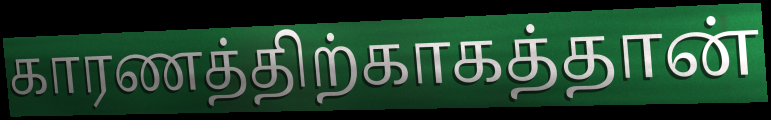
காரணத்திற்காகத்தான்